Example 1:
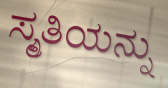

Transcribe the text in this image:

ಸ್ಮೃತಿಯನ್ನು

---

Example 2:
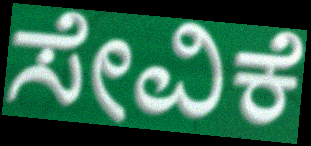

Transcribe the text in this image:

ಸೇವಿಕೆ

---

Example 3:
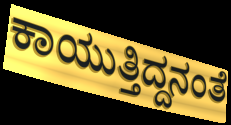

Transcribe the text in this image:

ಕಾಯುತ್ತಿದ್ದನಂತೆ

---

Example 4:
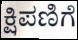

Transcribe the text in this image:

ಕ್ಷಿಪಣಿಗೆ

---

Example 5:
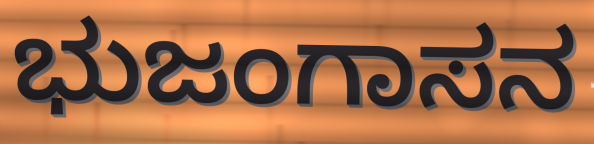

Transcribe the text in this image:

ಭುಜಂಗಾಸನ